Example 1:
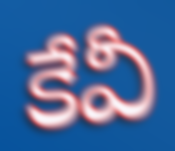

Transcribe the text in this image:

కేవీ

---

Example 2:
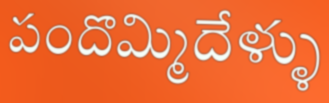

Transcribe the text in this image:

పందొమ్మిదేళ్ళు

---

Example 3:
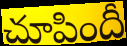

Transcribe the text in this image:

చూపిందీ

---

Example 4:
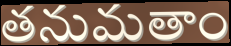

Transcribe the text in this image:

తనుమతాం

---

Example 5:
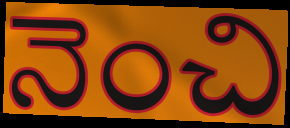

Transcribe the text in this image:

నెంచి